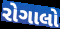
રોગાલો